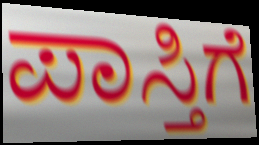
ಪಾಸ್ತಿಗೆ